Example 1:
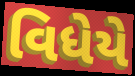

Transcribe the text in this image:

વિધેયે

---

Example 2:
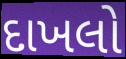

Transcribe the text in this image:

દાખલો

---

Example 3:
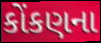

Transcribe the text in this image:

કોંકણના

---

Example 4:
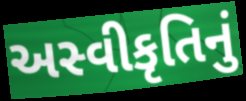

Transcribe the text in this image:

અસ્વીકૃતિનું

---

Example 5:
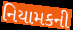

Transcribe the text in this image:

નિયામકની